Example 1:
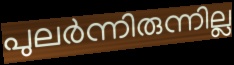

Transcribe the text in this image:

പുലർന്നിരുന്നില്ല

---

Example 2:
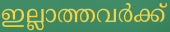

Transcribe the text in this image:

ഇല്ലാത്തവർക്ക്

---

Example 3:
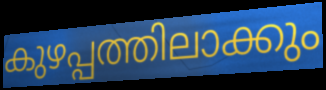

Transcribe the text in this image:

കുഴപ്പത്തിലാക്കും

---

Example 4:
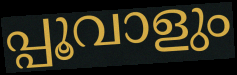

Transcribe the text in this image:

പ്പൂവാളും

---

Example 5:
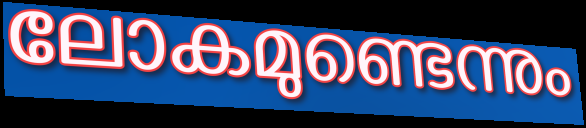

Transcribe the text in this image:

ലോകമുണ്ടെന്നും